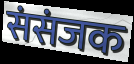
संसंजक